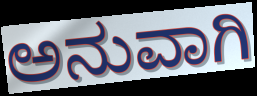
ಅನುವಾಗಿ